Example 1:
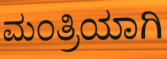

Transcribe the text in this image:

ಮಂತ್ರಿಯಾಗಿ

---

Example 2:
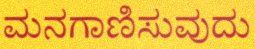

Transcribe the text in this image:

ಮನಗಾಣಿಸುವುದು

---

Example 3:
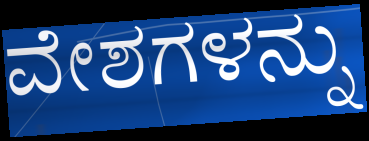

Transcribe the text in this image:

ವೇಶಗಳನ್ನು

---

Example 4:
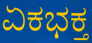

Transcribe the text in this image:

ಏಕಭಕ್ತ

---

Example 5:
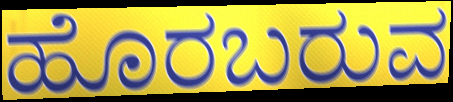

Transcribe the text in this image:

ಹೊರಬರುವ